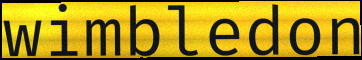
wimbledon